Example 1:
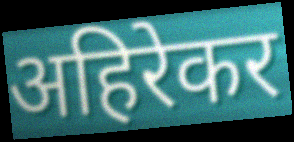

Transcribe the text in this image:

अहिरेकर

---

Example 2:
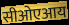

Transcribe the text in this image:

सीओएआय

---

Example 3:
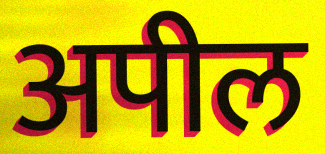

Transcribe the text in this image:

अपील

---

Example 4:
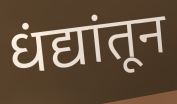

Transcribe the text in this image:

धंद्यांतून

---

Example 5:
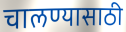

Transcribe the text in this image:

चालण्यासाठी